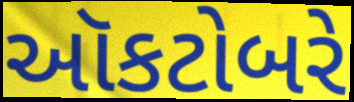
ઑકટોબરે